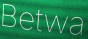
Betwa